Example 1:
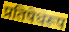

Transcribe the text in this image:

प्रतिषेधरूप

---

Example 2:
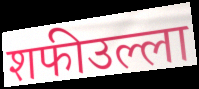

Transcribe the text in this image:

शफीउल्ला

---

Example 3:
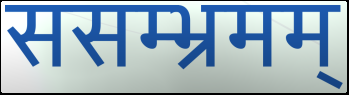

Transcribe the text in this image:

ससम्भ्रमम्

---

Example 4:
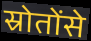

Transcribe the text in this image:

स्रोतोंसे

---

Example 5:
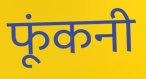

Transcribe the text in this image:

फूंकनी